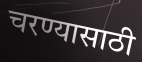
चरण्यासाठी